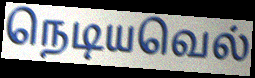
நெடியவெல்